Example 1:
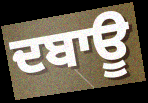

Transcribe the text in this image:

ਦਬਾਊ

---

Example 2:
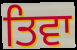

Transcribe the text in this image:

ਤਿਵਾ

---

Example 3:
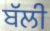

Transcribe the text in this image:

ਬੱਲੀ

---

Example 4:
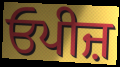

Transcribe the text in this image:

ਓਪੀਜ਼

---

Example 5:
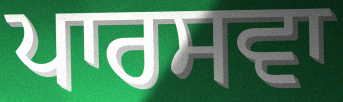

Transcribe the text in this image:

ਪਾਰਸਵਾ